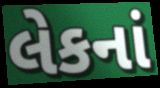
લેકનાં